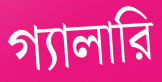
গ্যালারি